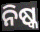
ନିଷ୍କ